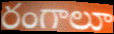
రంగాలూ